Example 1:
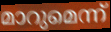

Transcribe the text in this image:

മാറുമെന്ന്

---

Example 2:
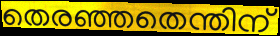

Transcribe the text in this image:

തെരഞ്ഞതെന്തിന്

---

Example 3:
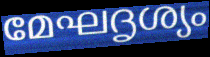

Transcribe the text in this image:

മേഘദൃശ്യം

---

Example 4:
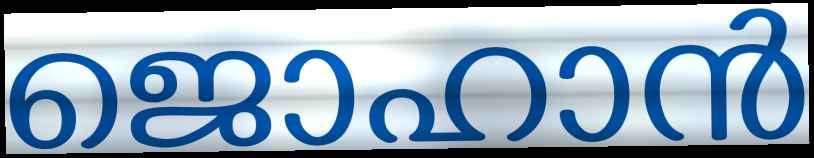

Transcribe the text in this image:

ജൊഹാൻ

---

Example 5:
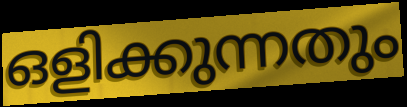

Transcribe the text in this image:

ഒളിക്കുന്നതും